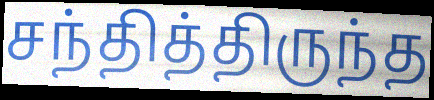
சந்தித்திருந்த